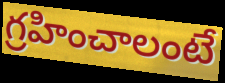
గ్రహించాలంటే